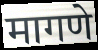
मागणे